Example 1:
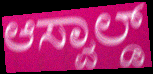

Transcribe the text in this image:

ಆಸ್ವಾಲ್ಡ್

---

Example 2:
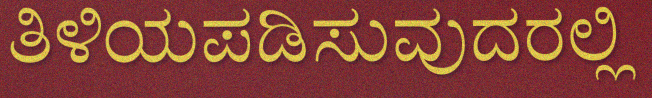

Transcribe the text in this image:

ತಿಳಿಯಪಡಿಸುವುದರಲ್ಲಿ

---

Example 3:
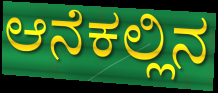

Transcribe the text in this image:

ಆನೆಕಲ್ಲಿನ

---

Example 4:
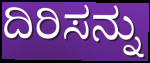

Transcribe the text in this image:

ದಿರಿಸನ್ನು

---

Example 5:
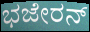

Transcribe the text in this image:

ಭಜೇರನ್